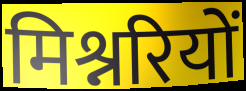
मिश्नरियों